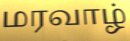
மரவாழ்